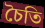
চৈতি